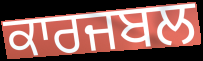
ਕਾਰਜਬਲ